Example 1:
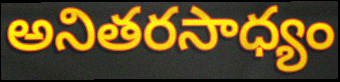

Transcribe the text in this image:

అనితరసాధ్యం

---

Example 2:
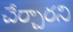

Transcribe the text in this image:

చేర్చారని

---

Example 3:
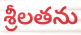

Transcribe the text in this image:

శ్రీలతను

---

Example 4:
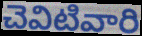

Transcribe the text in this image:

చెవిటివారి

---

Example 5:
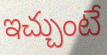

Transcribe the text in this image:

ఇచ్చుంటే